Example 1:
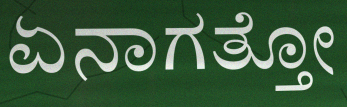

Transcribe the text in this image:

ಏನಾಗತ್ತೋ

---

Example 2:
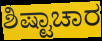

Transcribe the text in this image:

ಶಿಷ್ಟಾಚಾರ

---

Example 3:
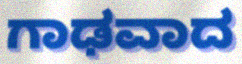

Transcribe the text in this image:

ಗಾಢವಾದ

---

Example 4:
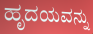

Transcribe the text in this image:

ಹೃದಯವನ್ನು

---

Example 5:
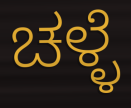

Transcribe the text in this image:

ಚಳ್ಳೆ